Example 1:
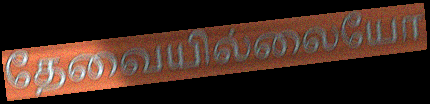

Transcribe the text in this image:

தேவையில்லையோ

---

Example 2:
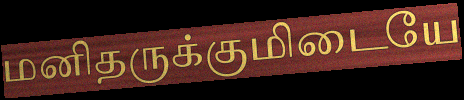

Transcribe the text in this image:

மனிதருக்குமிடையே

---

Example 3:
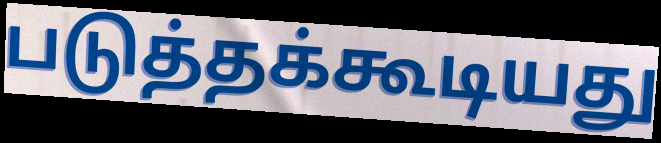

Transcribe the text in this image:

படுத்தக்கூடியது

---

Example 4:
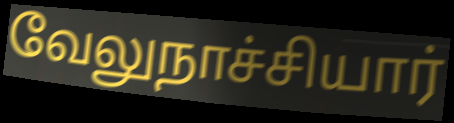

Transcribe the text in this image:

வேலுநாச்சியார்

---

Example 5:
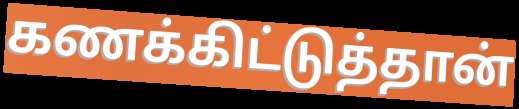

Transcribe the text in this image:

கணக்கிட்டுத்தான்